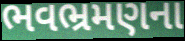
ભવભ્રમણના